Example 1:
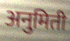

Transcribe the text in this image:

अनुमिती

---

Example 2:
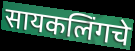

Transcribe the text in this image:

सायकलिंगचे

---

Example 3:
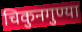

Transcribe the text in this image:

चिकुनगुण्या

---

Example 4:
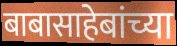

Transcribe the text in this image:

बाबासाहेबांच्‍या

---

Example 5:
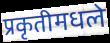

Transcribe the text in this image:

प्रकृतीमधले